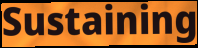
Sustaining